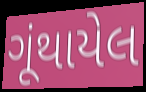
ગૂંથાયેલ